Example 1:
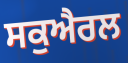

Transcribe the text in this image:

ਸਕੁਐਰਲ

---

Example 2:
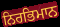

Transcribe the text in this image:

ਨਿਰਭਿਮਾਨ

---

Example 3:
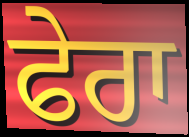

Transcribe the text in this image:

ਫੇਰਾ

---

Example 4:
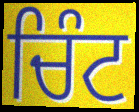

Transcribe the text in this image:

ਚਿੰਟ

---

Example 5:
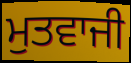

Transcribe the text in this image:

ਮੁਤਵਾਜੀ